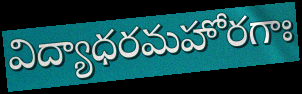
విద్యాధరమహోరగాః